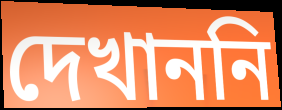
দেখাননি